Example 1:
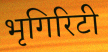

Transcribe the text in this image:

भृगिरिटी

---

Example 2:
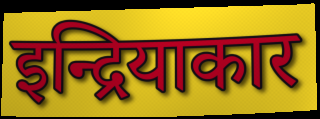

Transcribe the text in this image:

इन्द्रियाकार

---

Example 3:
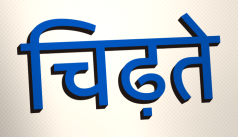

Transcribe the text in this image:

चिढ़ते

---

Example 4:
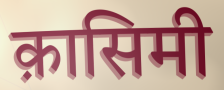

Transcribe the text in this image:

क़ासिमी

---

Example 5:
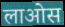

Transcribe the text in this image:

लाओस